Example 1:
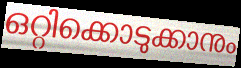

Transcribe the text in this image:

ഒറ്റിക്കൊടുക്കാനും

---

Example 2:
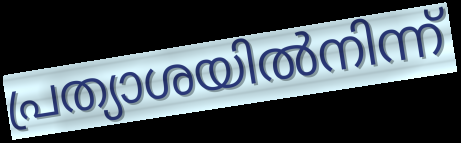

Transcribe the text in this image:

പ്രത്യാശയിൽനിന്ന്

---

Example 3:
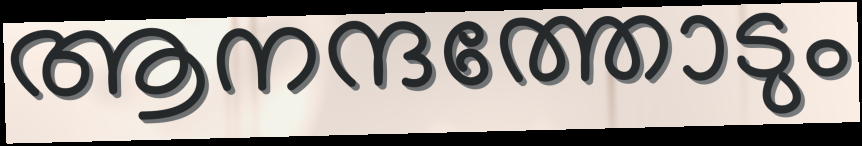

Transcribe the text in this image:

ആനന്ദത്തോടും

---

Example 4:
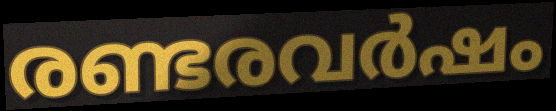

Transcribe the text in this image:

രണ്ടരവർഷം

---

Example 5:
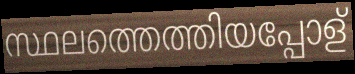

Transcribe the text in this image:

സ്ഥലത്തെത്തിയപ്പോള്